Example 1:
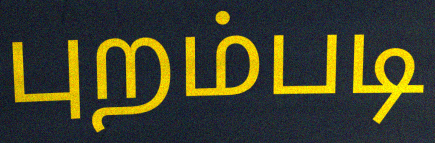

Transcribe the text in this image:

புறம்படி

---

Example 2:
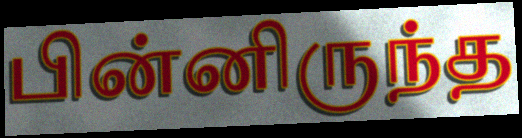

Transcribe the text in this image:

பின்னிருந்த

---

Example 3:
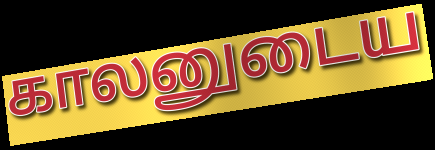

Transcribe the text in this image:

காலனுடைய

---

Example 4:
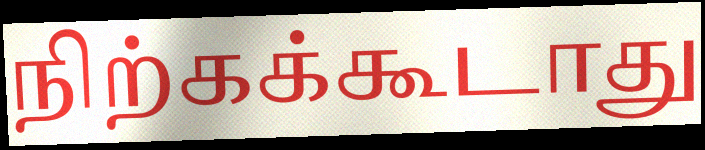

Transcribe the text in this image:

நிற்கக்கூடாது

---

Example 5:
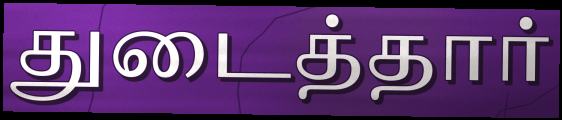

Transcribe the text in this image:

துடைத்தார்